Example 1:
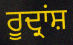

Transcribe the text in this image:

ਰੂਦ੍ਰਾਂਸ਼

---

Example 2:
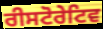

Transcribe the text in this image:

ਰੀਸਟੋਰੇਟਿਵ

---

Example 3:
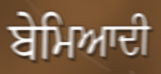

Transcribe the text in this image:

ਬੇਮਿਆਦੀ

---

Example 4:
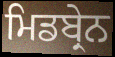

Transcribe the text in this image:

ਮਿਡਬ੍ਰੇਨ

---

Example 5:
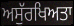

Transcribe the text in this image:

ਅਸੁੱਰਖਿਅਤਾ